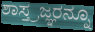
ಶಾಸ್ತ್ರಜ್ಞರನ್ನೂ